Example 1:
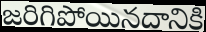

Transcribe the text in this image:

జరిగిపోయినదానికి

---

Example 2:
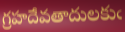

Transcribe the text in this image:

గ్రహదేవతాదులకుఁ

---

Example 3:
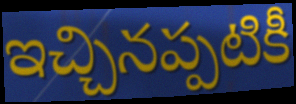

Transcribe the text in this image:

ఇచ్చినప్పటికీ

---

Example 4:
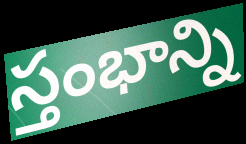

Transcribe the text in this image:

స్తంభాన్ని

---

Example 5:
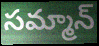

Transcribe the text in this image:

సమ్మాన్